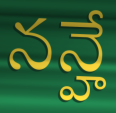
నన్హే